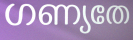
ഗണ്യതേ